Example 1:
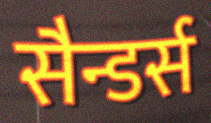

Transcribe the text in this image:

सैन्डर्स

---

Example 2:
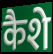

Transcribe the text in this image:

कैशे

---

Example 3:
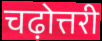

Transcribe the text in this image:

चढ़ोत्तरी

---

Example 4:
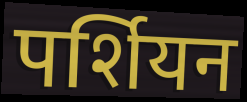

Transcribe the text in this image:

पर्शियन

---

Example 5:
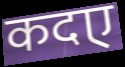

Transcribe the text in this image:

कदए